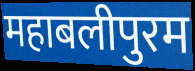
महाबलीपुरम